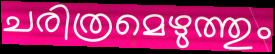
ചരിത്രമെഴുത്തും